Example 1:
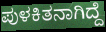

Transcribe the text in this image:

ಪುಳಕಿತನಾಗಿದ್ದೆ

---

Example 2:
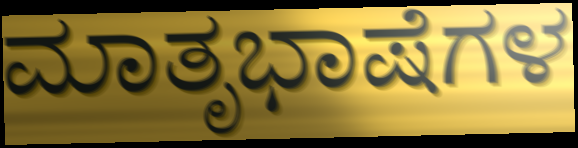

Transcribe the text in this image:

ಮಾತೃಭಾಷೆಗಳ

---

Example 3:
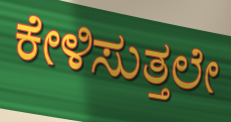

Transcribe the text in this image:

ಕೇಳಿಸುತ್ತಲೇ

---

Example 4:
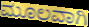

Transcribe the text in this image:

ಮೂಲವಾಗಿ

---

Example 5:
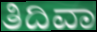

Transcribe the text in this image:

ತಿದಿವಾ